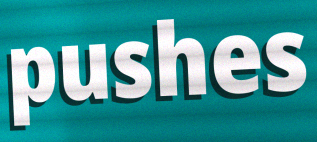
pushes